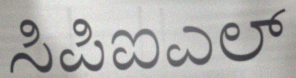
ಸಿಪಿಐಎಲ್